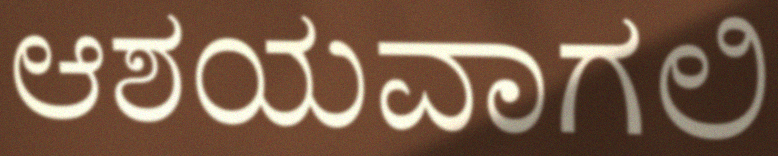
ಆಶಯವಾಗಲಿ